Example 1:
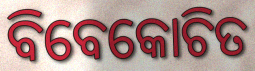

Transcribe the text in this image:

ବିବେକୋଚିତ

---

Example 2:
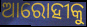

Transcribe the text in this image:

ଆରୋହୀକୁ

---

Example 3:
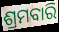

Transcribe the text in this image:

ଶ୍ରମବାରି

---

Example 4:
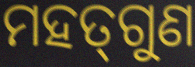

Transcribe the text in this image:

ମହତ୍‍ଗୁଣ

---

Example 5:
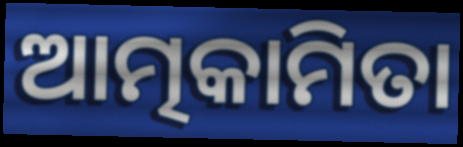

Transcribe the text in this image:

ଆତ୍ମକାମିତା